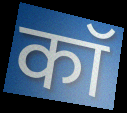
कॉ